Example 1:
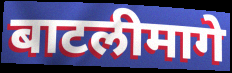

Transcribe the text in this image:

बाटलीमागे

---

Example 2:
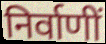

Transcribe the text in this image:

निर्वाणीं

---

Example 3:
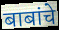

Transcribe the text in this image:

बाबांचे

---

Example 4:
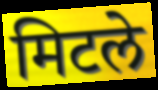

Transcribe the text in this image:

मिटले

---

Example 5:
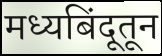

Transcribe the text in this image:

मध्यबिंदूतून